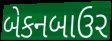
બેકનબાઉર